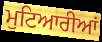
ਮੁਟਿਆਰੀਆਂ